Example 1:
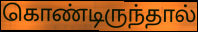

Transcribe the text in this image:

கொண்டிருந்தால்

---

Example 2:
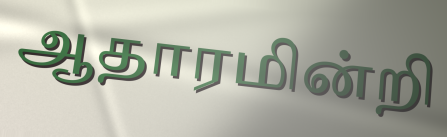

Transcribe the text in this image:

ஆதாரமின்றி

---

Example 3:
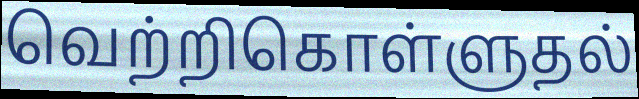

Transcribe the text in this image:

வெற்றிகொள்ளுதல்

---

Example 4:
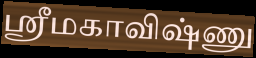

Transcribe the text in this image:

ஸ்ரீமகாவிஷ்ணு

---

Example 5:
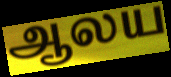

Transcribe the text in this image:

ஆலய